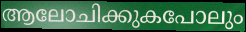
ആലോചിക്കുകപോലും